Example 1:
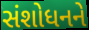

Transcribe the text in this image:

સંશોધનને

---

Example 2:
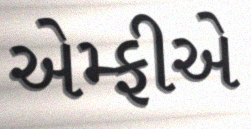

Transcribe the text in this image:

એમ્ફીએ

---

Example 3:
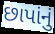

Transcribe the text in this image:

છાપાંનું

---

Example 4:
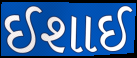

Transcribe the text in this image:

ઈશાઈ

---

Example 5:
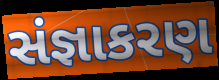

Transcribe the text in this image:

સંજ્ઞાકરણ